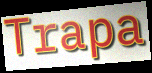
Trapa